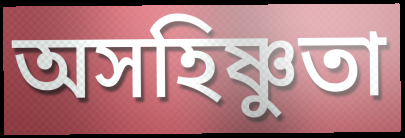
অসহিষ্ণুতা